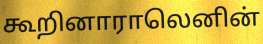
கூறினாராலெனின்